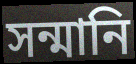
সন্মানি